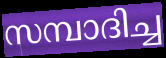
സമ്പാദിച്ച